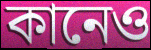
কানেও